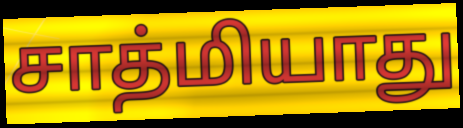
சாத்மியாது